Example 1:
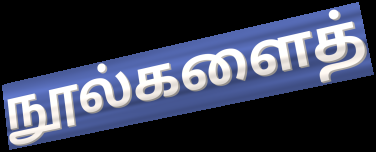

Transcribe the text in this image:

நூல்களைத்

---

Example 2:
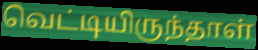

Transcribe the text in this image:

வெட்டியிருந்தாள்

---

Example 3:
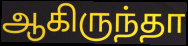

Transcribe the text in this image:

ஆகிருந்தா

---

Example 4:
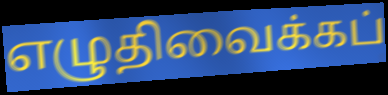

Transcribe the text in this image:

எழுதிவைக்கப்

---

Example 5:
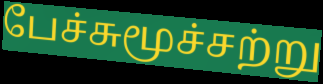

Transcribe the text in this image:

பேச்சுமூச்சற்று